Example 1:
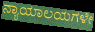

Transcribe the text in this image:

ನ್ಯಾಯಾಲಯಗಳೇ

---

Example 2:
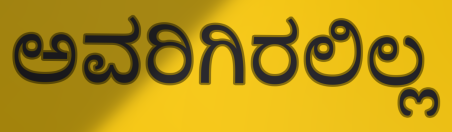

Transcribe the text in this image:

ಅವರಿಗಿರಲಿಲ್ಲ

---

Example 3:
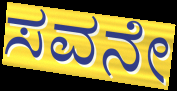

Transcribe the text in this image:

ಸವನೇ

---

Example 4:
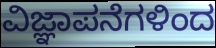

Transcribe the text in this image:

ವಿಜ್ಞಾಪನೆಗಳಿಂದ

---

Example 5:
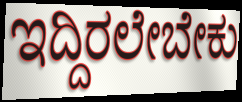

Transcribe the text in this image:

ಇದ್ದಿರಲೇಬೇಕು